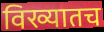
विख्यातच